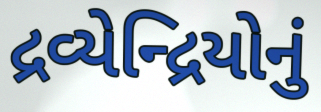
દ્રવ્યેન્દ્રિયોનું